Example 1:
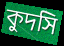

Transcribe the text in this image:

কুদসি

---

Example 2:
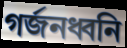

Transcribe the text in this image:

গর্জনধ্বনি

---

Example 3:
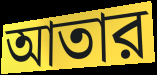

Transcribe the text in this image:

আতার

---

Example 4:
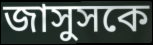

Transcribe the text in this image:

জাসুসকে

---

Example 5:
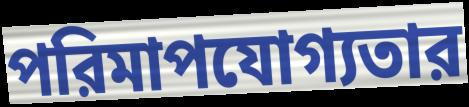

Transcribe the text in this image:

পরিমাপযোগ্যতার